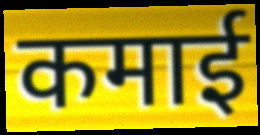
कमाई